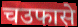
चउफासे